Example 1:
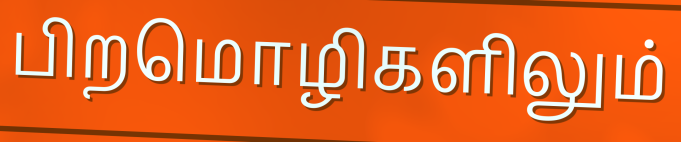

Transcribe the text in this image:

பிறமொழிகளிலும்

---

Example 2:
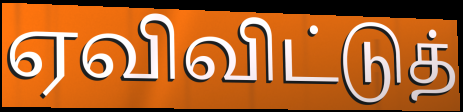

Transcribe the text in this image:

ஏவிவிட்டுத்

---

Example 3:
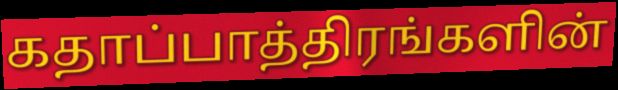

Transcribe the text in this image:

கதாப்பாத்திரங்களின்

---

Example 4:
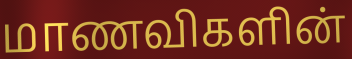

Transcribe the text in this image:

மாணவிகளின்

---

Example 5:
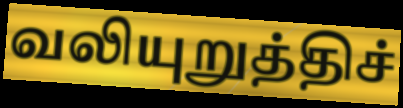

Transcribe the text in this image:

வலியுறுத்திச்